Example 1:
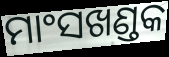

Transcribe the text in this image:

ମାଂସଖଣ୍ଡକ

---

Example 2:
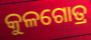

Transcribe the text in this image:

କୁଳଗୋତ୍ର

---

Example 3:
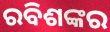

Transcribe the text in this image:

ରବିଶଙ୍କର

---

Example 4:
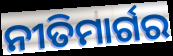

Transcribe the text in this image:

ନୀତିମାର୍ଗର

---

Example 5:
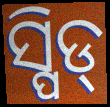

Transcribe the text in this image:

ସ୍ପିଡ୍